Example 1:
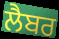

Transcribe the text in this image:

ਲੈਬਰ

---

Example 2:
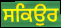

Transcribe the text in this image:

ਸਕਿਉਰ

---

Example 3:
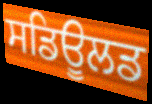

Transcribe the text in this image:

ਸਡਿਊਲਡ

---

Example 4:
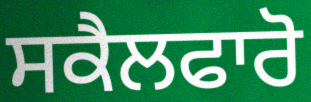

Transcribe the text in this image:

ਸਕੈਲਫਾਰੋ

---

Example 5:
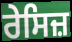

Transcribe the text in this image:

ਰੇਸਿਜ਼